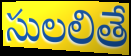
సులలితే